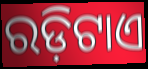
ରଡ଼ିଟାଏ